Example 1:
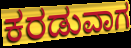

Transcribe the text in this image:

ಕರಡುವಾಗ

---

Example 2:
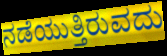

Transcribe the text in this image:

ನಡೆಯುತ್ತಿರುವದು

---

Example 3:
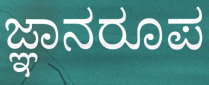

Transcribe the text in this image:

ಜ್ಞಾನರೂಪ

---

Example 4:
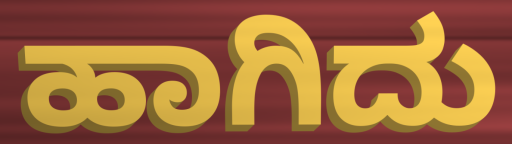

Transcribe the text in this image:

ಹಾಗಿದು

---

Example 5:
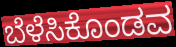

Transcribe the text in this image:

ಬೆಳೆಸಿಕೊಂಡವ